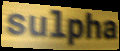
sulpha